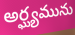
అర్ఘ్యమును